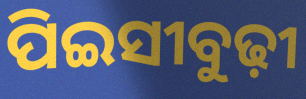
ପିଇସୀବୁଢ଼ୀ